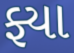
ફ્યા